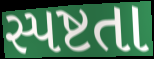
સ્પષ્ટતા